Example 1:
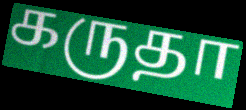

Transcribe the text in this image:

கருதா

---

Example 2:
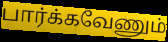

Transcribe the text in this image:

பார்க்கவேணும்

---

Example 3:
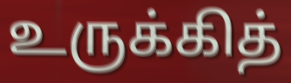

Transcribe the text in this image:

உருக்கித்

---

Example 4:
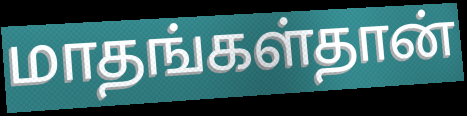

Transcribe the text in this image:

மாதங்கள்தான்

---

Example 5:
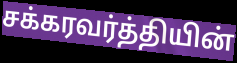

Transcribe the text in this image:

சக்கரவர்த்தியின்